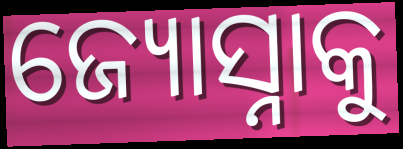
ଜ୍ୟୋସ୍ନାକୁ